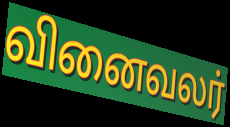
வினைவலர்